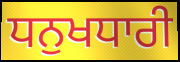
ਧਨੁਖਧਾਰੀ